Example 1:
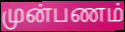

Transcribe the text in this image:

முன்பணம்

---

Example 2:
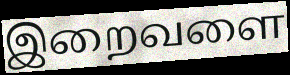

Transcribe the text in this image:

இறைவளை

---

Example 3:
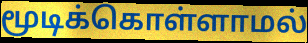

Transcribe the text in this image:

மூடிக்கொள்ளாமல்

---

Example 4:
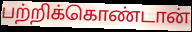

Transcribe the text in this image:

பற்றிக்கொண்டான்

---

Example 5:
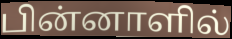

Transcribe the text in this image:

பின்னாளில்